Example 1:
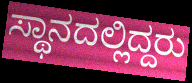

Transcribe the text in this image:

ಸ್ಥಾನದಲ್ಲಿದ್ದರು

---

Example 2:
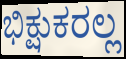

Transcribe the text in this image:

ಭಿಕ್ಷುಕರಲ್ಲ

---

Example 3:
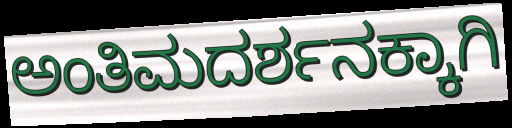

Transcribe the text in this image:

ಅಂತಿಮದರ್ಶನಕ್ಕಾಗಿ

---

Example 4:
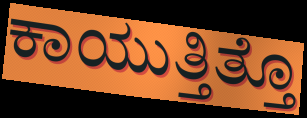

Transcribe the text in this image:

ಕಾಯುತ್ತಿತ್ತೊ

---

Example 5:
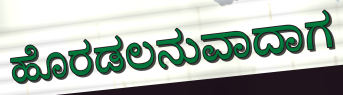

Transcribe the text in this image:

ಹೊರಡಲನುವಾದಾಗ